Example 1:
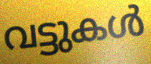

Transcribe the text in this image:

വട്ടുകൾ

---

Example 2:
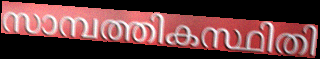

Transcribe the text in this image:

സാമ്പത്തികസ്ഥിതി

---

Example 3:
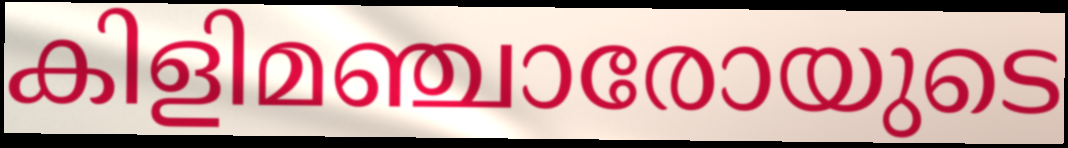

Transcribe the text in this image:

കിളിമഞ്ചാരോയുടെ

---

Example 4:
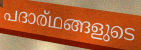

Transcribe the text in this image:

പദാര്ഥങ്ങളുടെ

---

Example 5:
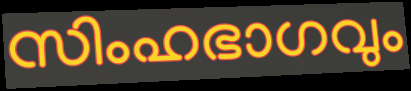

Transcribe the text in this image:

സിംഹഭാഗവും